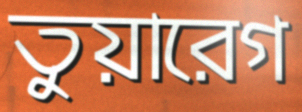
তুয়ারেগ